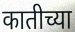
कातीच्या